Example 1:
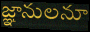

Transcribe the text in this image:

జ్ఞానులనూ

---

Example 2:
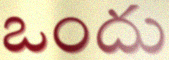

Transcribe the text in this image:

ఒందు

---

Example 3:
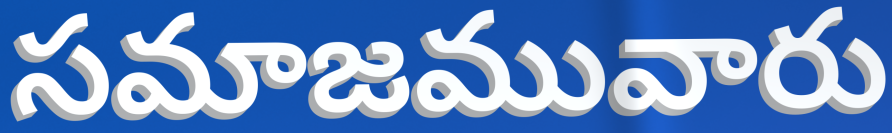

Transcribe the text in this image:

సమాజమువారు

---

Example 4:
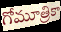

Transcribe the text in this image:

గోమూత్రికా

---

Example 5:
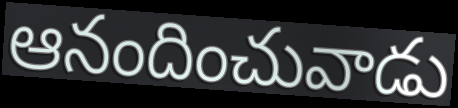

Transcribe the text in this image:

ఆనందించువాడు